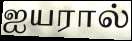
ஐயரால்